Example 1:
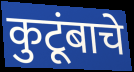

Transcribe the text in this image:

कुटूंबाचे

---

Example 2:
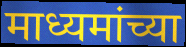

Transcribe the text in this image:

माध्यमांच्या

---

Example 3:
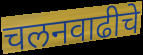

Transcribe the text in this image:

चलनवाढीचे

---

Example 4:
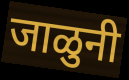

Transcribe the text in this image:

जाळुनी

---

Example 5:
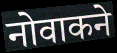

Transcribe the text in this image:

नोवाकने